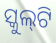
ସ୍କୁଲ୍‌ଟି